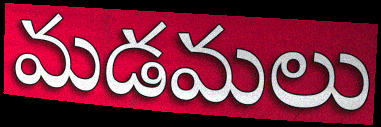
మడమలు